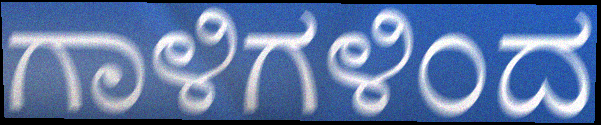
ಗಾಳಿಗಳಿಂದ